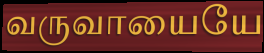
வருவாயையே